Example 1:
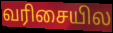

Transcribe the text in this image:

வரிசையில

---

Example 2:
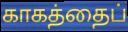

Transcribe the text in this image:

காகத்தைப்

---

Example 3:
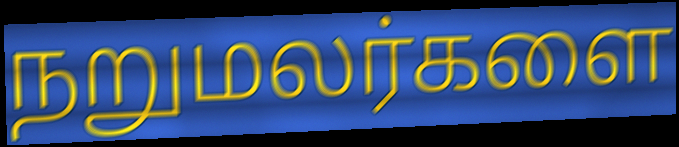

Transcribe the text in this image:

நறுமலர்களை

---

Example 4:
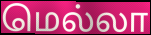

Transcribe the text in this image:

மெல்லா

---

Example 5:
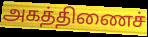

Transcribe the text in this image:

அகத்திணைச்